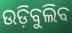
ଉଡ଼ିବୁଲିବ